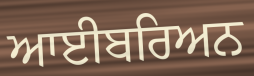
ਆਈਬਰਿਅਨ